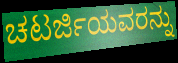
ಚಟರ್ಜಿಯವರನ್ನು